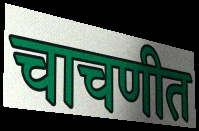
चाचणीत